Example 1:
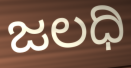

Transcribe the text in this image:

ಜಲಧಿ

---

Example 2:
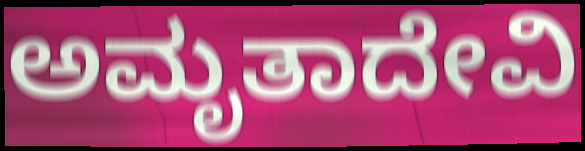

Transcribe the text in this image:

ಅಮೃತಾದೇವಿ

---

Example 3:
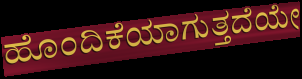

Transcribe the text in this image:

ಹೊಂದಿಕೆಯಾಗುತ್ತದೆಯೇ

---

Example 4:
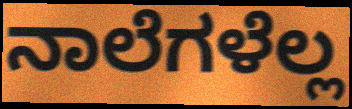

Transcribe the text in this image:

ನಾಲೆಗಳೆಲ್ಲ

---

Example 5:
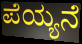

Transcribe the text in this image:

ಪೆಯ್ಯನೆ